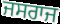
ਜਸਰਾਜ